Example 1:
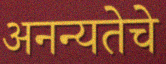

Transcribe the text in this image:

अनन्यतेचे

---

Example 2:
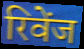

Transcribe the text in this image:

रिवेंज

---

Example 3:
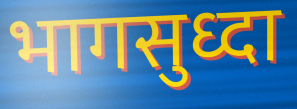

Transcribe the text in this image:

भागसुध्दा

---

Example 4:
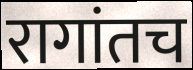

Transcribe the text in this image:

रागांतच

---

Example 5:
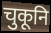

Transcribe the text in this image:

चुकूनि